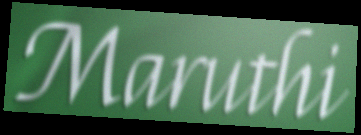
Maruthi